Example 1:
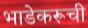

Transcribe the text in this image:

भाडेकरूची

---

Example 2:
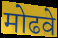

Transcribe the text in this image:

मोढवे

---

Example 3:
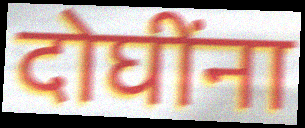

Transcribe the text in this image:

दोघींना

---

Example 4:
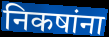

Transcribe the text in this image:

निकषांना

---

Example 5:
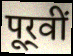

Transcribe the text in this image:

पूर्वीं